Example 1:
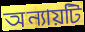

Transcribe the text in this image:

অন্যায়টি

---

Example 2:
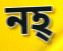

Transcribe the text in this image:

নহ্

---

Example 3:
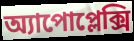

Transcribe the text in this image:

অ্যাপোপ্লেক্সি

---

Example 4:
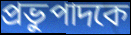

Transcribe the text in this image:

প্রভুপাদকে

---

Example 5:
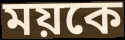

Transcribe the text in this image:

ময়কে